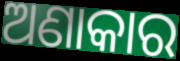
ଅଣାକାର